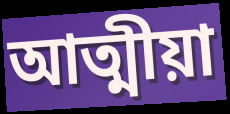
আত্মীয়া